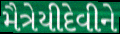
મૈત્રેયીદેવીને